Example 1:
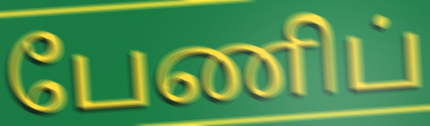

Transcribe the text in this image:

பேணிப்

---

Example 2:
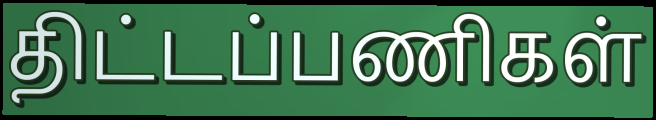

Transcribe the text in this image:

திட்டப்பணிகள்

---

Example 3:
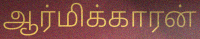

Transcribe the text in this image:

ஆர்மிக்காரன்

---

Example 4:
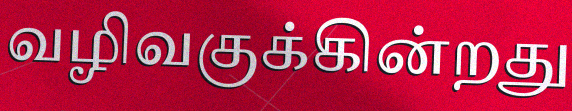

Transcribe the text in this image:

வழிவகுக்கின்றது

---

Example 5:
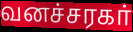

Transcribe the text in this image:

வனச்சரகர்